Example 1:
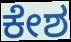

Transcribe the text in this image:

ಕೇಶ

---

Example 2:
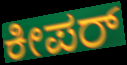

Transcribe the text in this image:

ಕೀಪರ್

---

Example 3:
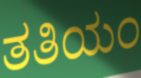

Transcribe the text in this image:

ತತಿಯಂ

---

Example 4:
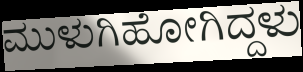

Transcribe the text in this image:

ಮುಳುಗಿಹೋಗಿದ್ದಳು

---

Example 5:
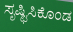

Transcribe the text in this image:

ಸೃಷ್ಟಿಸಿಕೊಂಡ